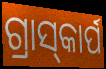
ଗ୍ରାସ୍‌କାର୍ପ